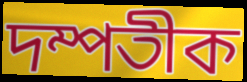
দম্পতীক